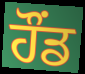
ਹੌਂਡ